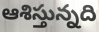
ఆశిస్తున్నది